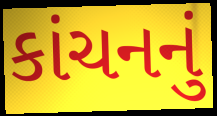
કાંચનનું